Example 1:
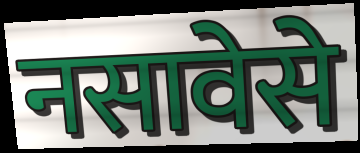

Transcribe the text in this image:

नसावेसे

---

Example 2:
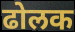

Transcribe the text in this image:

ढोलक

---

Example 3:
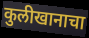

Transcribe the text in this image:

कुलीखानाचा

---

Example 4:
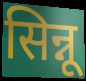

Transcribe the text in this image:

सिन्नू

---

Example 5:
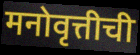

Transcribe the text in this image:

मनोवृत्तीची